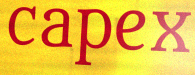
capex